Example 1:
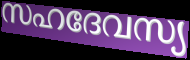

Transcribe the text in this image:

സഹദേവസ്യ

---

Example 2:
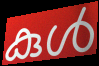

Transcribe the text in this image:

കുൾ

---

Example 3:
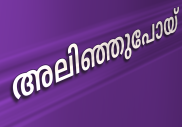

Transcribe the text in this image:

അലിഞ്ഞുപോയ്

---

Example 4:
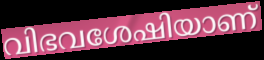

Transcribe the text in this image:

വിഭവശേഷിയാണ്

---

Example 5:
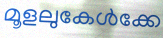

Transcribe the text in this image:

മൂളലുകേൾക്കേ